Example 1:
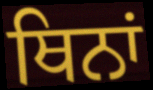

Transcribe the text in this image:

ਥਿਨਾਂ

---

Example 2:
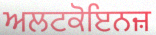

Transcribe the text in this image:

ਅਲਟਕੋਇਨਜ਼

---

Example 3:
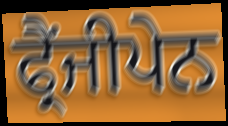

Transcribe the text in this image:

ਫ੍ਰੈਂਜੀਪੇਨ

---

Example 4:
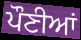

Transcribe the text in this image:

ਪੌਣੀਆਂ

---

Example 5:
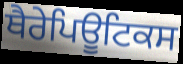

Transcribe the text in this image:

ਥੈਰੇਪਿਊਟਿਕਸ